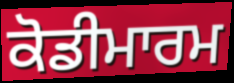
ਕੋਡੀਮਾਰਮ